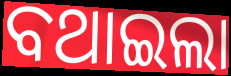
ବଥାଇଲା